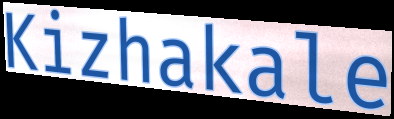
Kizhakale